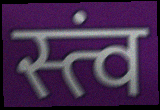
स्त्वं